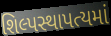
શિલ્પસ્થાપત્યમાં